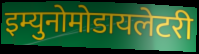
इम्युनोमोडायलेटरी